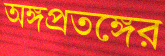
অঙ্গপ্রতঙ্গের